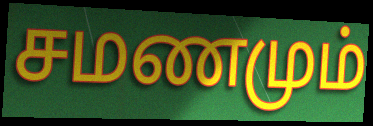
சமணமும்